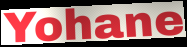
Yohane